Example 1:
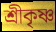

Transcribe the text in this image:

শ্ৰীকৃষ্ণ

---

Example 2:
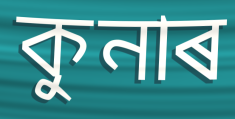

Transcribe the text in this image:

কুনাৰ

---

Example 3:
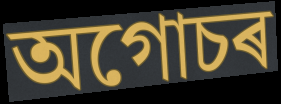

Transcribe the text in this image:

অগোচৰ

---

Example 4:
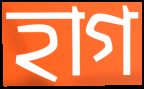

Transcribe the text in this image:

হাগ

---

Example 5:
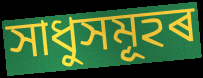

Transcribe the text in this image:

সাধুসমূহৰ